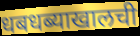
धबधब्याखालची